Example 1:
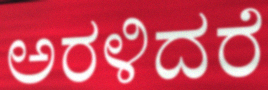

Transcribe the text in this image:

ಅರಳಿದರೆ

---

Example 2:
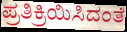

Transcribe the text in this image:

ಪ್ರತಿಕ್ರಿಯಿಸಿದಂತೆ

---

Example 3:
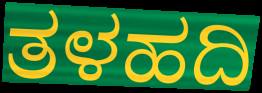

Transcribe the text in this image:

ತಳಹದಿ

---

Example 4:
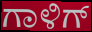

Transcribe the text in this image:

ಗಾಳಿಗ್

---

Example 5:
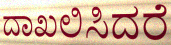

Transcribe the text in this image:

ದಾಖಲಿಸಿದರೆ